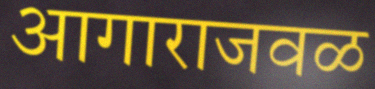
आगाराजवळ